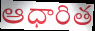
ఆధారిత